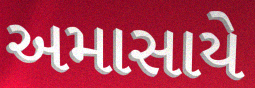
અમાસાયે